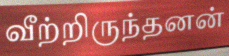
வீற்றிருந்தனன்